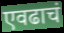
एवढाचं